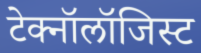
टेक्नॉलॉजिस्ट